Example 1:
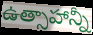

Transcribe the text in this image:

ఉత్సాహాన్నీ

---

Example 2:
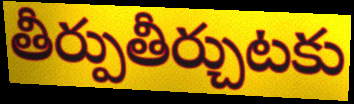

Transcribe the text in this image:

తీర్పుతీర్చుటకు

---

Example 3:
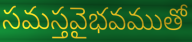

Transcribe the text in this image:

సమస్తవైభవముతో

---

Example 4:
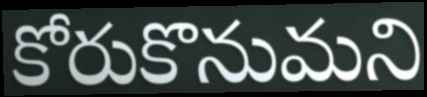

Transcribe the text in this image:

కోరుకొనుమని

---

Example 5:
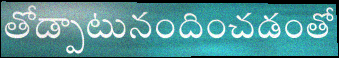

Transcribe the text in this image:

తోడ్పాటునందించడంతో